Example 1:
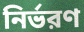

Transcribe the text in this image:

নির্ভরণ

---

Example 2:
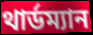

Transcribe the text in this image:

থার্ডম্যান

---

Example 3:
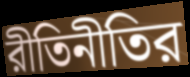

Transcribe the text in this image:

রীতিনীতির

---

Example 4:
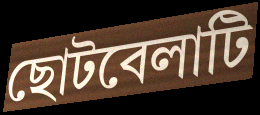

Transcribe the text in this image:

ছোটবেলাটি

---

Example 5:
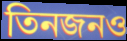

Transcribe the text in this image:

তিনজনও